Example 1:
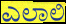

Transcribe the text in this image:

ಎಲಾಲಿ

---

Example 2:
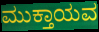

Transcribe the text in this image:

ಮುಕ್ತಾಯವ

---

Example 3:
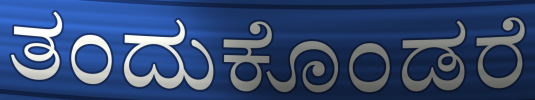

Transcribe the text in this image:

ತಂದುಕೊಂಡರೆ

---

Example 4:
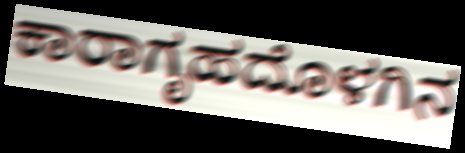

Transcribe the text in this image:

ಕಾರಾಗೃಹದೊಳಗಿನ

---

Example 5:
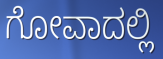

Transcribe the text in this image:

ಗೋವಾದಲ್ಲಿ